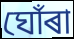
ঘোঁৰা